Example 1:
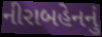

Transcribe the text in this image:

નીરાબહેનનું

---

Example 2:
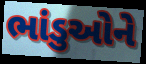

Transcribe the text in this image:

ભાંડુઓને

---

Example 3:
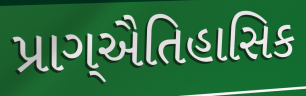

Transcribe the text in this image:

પ્રાગ્ઐતિહાસિક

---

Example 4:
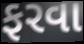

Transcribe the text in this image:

ફરવા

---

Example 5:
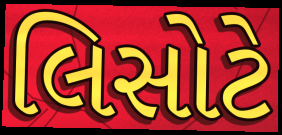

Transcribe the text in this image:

લિસોટે